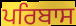
ਪਰਿਬਾਸ